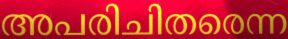
അപരിചിതരെന്ന